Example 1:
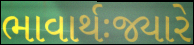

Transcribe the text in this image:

ભાવાર્થઃજ્યારે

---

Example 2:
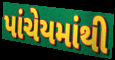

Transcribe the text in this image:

પાંચેયમાંથી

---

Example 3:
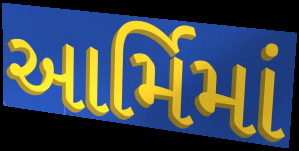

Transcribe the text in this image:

આર્મિમાં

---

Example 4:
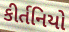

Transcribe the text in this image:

કીર્તનિયો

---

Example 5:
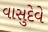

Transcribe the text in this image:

વાસુદેવે